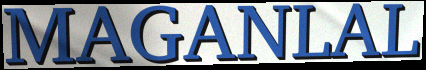
MAGANLAL